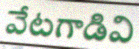
వేటగాడివి